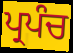
ਪ੍ਰਪੰਚ